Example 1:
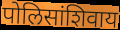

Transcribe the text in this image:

पोलिसांशिवाय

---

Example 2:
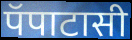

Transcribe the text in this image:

पॅपाटासी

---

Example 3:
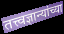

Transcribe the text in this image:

तत्त्वज्ञान्यांच्या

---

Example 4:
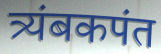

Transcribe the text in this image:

त्र्यंबकपंत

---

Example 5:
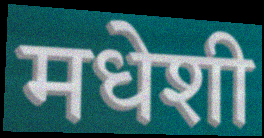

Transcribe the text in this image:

मधेशी